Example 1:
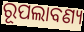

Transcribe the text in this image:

ରୂପଲାବଣ୍ୟ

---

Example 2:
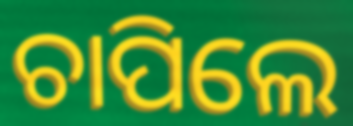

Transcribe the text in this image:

ଚାପିଲେ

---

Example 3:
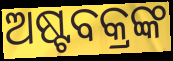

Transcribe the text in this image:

ଅଷ୍ଟବକ୍ରଙ୍କ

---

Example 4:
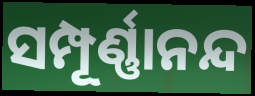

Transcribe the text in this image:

ସମ୍ପୂର୍ଣ୍ଣାନନ୍ଦ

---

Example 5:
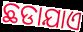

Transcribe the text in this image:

ଛଡାଯାଏ